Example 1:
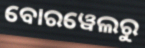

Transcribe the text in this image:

ବୋରୱେଲରୁ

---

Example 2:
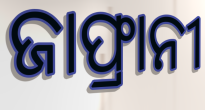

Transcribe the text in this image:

ଜାଫ୍ରାନୀ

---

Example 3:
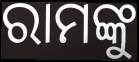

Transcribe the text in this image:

ରାମଙ୍କୁ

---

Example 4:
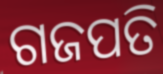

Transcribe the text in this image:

ଗଜପତି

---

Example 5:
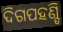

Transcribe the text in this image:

ଦିଗପହଣ୍ଡି